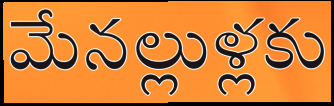
మేనల్లుళ్లకు